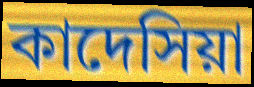
কাদেসিয়া